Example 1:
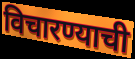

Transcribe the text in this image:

विचारण्याची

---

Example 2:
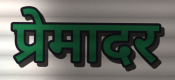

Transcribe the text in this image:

प्रेमादर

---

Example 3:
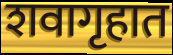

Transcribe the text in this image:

शवागृहात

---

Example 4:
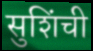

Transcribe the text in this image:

सुशिंची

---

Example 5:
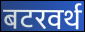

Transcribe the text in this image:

बटरवर्थ